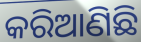
କରିଆଣିଛି